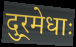
दुर्मेधाः